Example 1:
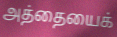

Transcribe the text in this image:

அத்தையைக்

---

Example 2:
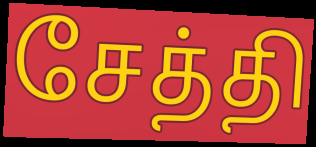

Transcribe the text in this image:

சேத்தி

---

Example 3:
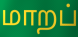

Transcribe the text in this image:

மாறப்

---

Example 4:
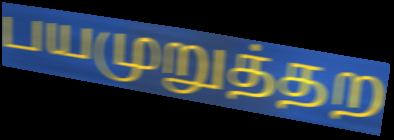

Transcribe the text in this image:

பயமுறுத்தற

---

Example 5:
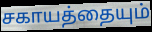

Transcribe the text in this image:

சகாயத்தையும்